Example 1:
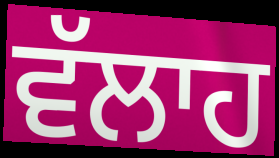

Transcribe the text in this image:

ਵੱਲਾਹ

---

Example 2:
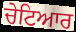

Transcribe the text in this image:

ਚੇਟਿਆਰ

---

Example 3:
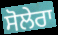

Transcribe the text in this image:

ਸੋਲੇਰਾ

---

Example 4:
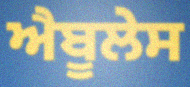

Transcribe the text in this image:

ਐਬੂਲੇਸ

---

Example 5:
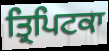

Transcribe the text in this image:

ਤ੍ਰਿਪਿਟਕਾ